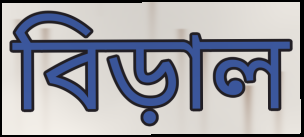
বিড়াল